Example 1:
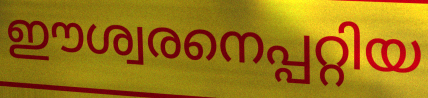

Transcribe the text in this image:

ഈശ്വരനെപ്പറ്റിയ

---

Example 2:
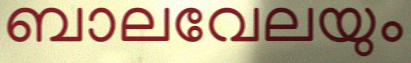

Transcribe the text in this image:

ബാലവേലയും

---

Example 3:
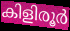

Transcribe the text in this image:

കിളിരൂർ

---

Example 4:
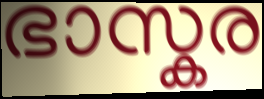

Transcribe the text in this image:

ഭാസ്കര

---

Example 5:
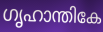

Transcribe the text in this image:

ഗൃഹാന്തികേ